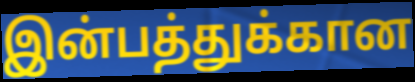
இன்பத்துக்கான